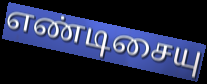
எண்டிசையு